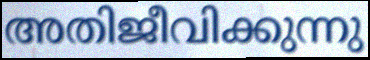
അതിജീവിക്കുന്നു